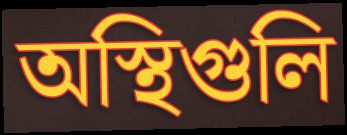
অস্থিগুলি